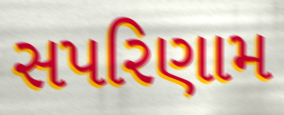
સપરિણામ